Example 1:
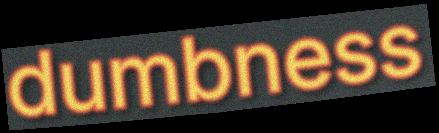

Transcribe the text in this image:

dumbness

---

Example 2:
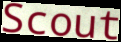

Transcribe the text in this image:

Scout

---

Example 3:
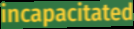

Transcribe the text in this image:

incapacitated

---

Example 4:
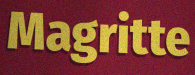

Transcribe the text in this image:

Magritte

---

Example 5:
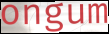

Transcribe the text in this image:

ongum